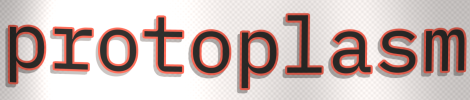
protoplasm